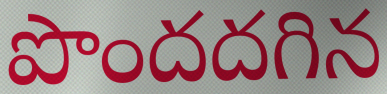
పొందదగిన